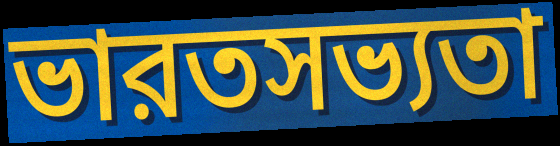
ভারতসভ্যতা